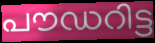
പൗഡറിട്ട